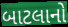
બાટલાનો